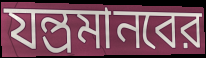
যন্ত্রমানবের